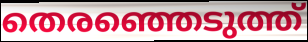
തെരഞ്ഞെടുത്ത്